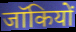
जॉकियों